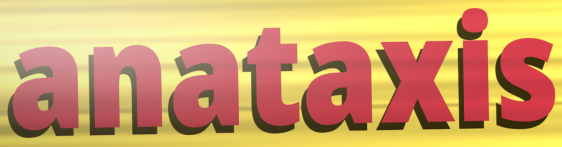
anataxis